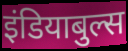
इंडियाबुल्स